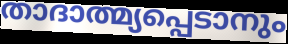
താദാത്മ്യപ്പെടാനും